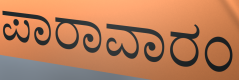
ಪಾರಾವಾರಂ